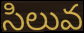
సిలువ